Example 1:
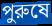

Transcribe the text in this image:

পুরুষে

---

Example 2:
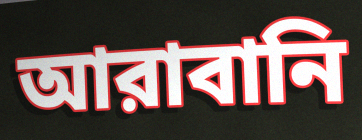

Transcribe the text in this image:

আরাবানি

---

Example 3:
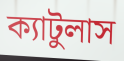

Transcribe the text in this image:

ক্যাটুলাস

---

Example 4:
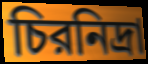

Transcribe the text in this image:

চিরনিদ্রা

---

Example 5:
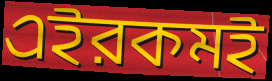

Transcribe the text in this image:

এইরকমই